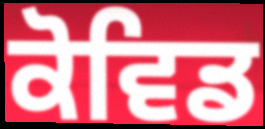
ਕੋਵਿਡ